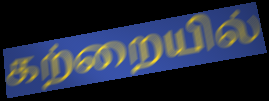
கற்றையில்